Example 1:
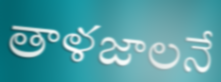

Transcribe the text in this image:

తాళజాలనే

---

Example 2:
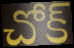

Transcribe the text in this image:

చోక్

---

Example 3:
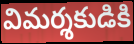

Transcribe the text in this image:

విమర్శకుడికి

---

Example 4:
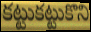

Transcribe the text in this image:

కట్టుకట్టుకొని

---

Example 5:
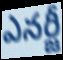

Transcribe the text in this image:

ఎనర్జీ